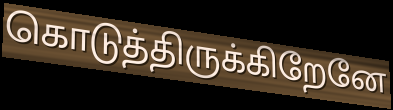
கொடுத்திருக்கிறேனே